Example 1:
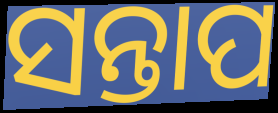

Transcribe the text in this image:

ସନ୍ତାପ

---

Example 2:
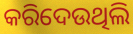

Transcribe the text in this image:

କରିଦେଉଥିଲି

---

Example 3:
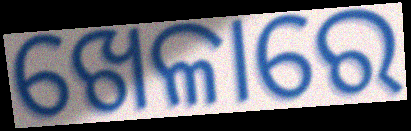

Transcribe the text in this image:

ଖେଳାରେ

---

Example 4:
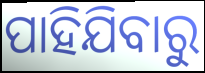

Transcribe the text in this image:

ପାହିଯିବାରୁ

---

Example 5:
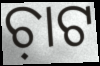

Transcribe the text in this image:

ଚ଼ାଟ